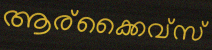
ആര്ക്കൈവ്സ്